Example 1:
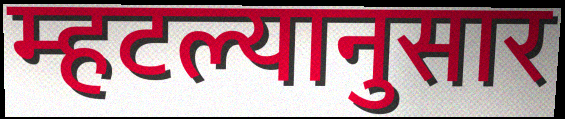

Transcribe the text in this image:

म्हटल्यानुसार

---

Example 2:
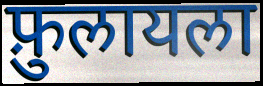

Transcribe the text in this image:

फ़ुलायला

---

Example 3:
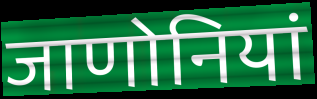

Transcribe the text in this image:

जाणोनियां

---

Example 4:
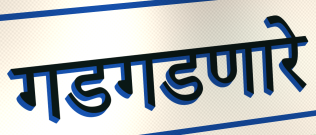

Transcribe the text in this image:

गडगडणारे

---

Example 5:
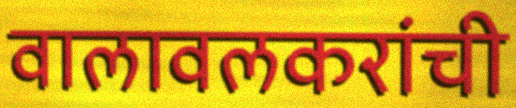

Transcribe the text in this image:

वालावलकरांची